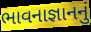
ભાવનાજ્ઞાનનું